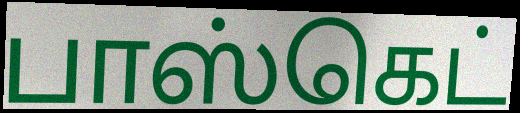
பாஸ்கெட்